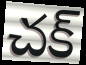
చక్